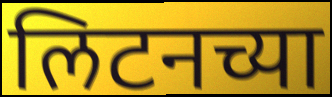
लिटनच्या